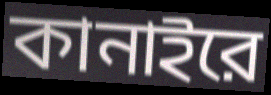
কানাইরে